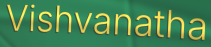
Vishvanatha